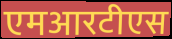
एमआरटीएस